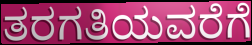
ತರಗತಿಯವರೆಗೆ